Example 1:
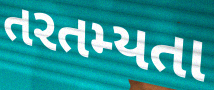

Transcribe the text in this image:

તરતમ્યતા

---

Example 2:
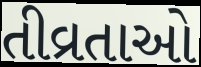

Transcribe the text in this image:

તીવ્રતાઓ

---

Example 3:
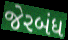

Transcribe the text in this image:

જેરબંધ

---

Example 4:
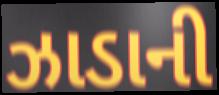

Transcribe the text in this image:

ઝાડાની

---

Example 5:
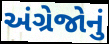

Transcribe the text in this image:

અંગ્રેજોનું